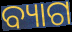
ବ୍ୟାଗ